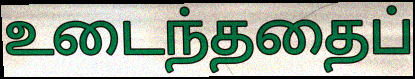
உடைந்ததைப்